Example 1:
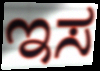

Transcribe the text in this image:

ಇಸ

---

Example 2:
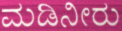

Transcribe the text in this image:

ಮಡಿನೀರು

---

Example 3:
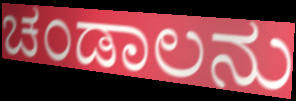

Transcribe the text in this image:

ಚಂಡಾಲನು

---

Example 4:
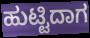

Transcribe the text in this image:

ಹುಟ್ಟಿದಾಗ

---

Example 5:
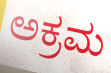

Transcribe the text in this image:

ಅಕ್ರಮ